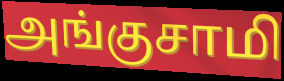
அங்குசாமி